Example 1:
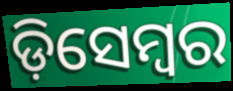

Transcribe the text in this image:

ଡ଼ିସେମ୍ୱର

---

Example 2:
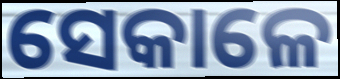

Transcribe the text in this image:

ସେକାଳେ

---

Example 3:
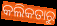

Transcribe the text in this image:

କଲିକତାରୁ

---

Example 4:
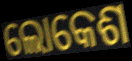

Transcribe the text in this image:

ଲୋକେଶ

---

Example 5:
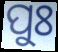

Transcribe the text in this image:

ପୁଃ